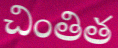
చింతిత